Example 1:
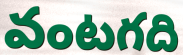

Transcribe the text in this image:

వంటగది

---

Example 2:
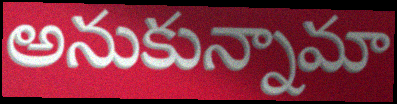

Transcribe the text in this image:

అనుకున్నామా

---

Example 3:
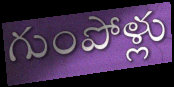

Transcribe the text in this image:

గుంపోళ్లు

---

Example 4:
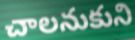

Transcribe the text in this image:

చాలనుకుని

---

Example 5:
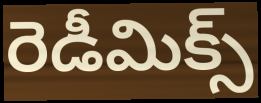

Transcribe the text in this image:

రెడీమిక్స్